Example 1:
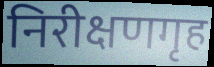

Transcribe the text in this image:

निरीक्षणगृह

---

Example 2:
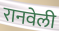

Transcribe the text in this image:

रानवेली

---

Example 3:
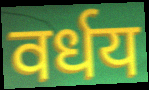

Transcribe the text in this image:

वर्धय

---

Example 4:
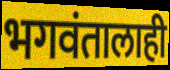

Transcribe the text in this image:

भगवंतालाही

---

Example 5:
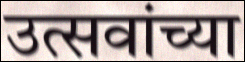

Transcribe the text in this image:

उत्सवांच्या